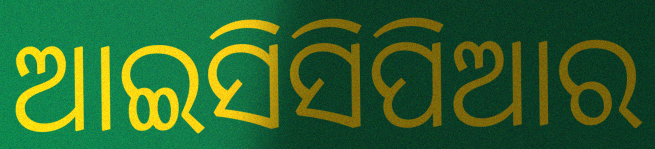
ଆଇସିସିପିଆର